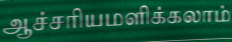
ஆச்சரியமளிக்கலாம்